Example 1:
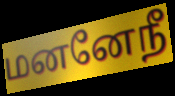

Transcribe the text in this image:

மனனேநீ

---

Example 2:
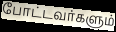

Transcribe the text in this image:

போட்டவர்களும்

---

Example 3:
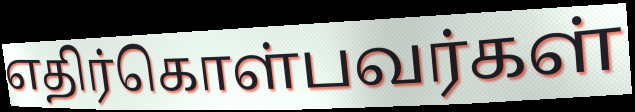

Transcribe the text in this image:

எதிர்கொள்பவர்கள்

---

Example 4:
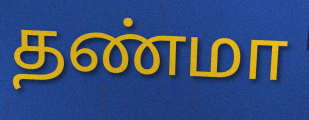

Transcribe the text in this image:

தண்மா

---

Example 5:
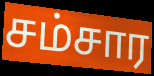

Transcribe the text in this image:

சம்சார